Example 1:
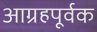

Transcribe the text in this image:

आग्रहपूर्वक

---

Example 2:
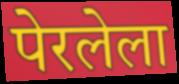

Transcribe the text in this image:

पेरलेला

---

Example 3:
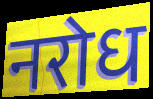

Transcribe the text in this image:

नरोध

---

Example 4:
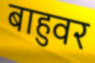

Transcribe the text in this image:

बाहुवर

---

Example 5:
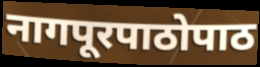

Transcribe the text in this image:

नागपूरपाठोपाठ